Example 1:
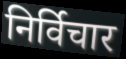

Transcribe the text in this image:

निर्विचार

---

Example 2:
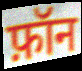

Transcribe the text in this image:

फ़ॉन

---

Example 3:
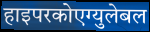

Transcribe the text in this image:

हाइपरकोएग्युलेबल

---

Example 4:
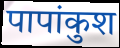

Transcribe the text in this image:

पापांकुश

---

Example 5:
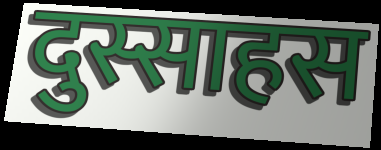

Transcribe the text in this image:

दुस्साहस